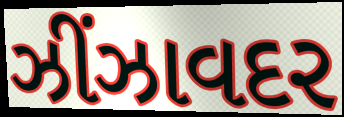
ઝીંઝાવદર